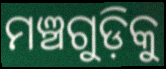
ମଞ୍ଚଗୁଡ଼ିକୁ